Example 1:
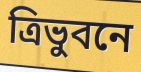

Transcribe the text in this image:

ত্রিভুবনে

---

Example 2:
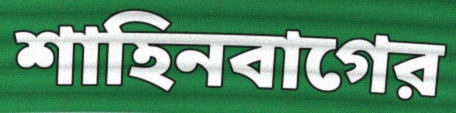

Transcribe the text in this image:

শাহিনবাগের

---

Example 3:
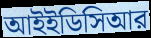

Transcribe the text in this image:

আইইডিসিআর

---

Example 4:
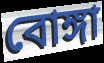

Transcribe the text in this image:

বোঙ্গা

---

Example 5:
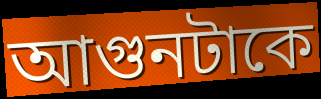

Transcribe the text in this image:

আগুনটাকে